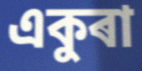
একুৰা